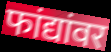
फांद्यांवर